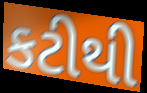
કટીથી